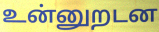
உன்னுறடன